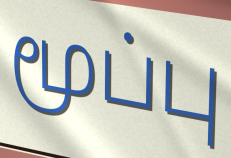
மூப்பு